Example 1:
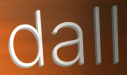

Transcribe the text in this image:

dall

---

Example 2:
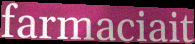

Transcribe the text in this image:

farmaciait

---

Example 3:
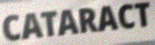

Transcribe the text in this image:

CATARACT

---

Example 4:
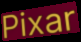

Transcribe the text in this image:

Pixar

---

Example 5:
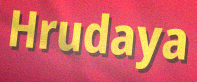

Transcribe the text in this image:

Hrudaya